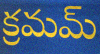
క్రమమ్